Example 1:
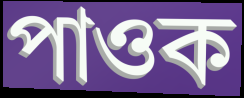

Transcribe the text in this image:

পাওক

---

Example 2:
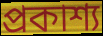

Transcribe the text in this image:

প্ৰকাশ্য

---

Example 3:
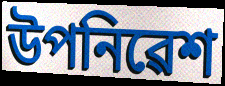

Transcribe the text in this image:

উপনিৱেশ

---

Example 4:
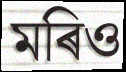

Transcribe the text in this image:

মৰিও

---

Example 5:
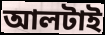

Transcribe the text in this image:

আলটাই